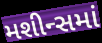
મશીન્સમાં